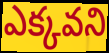
ఎక్కవని